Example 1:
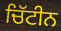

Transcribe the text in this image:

ਚਿੱਟੀਨ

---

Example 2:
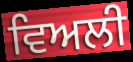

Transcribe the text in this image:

ਵਿਅਲੀ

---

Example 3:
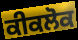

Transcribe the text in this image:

ਕੀਕਲੋਕ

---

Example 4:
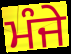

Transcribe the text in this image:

ਮੰਜੇ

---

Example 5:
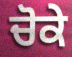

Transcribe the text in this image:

ਚੋਕੇ